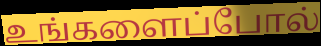
உங்களைப்போல்